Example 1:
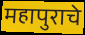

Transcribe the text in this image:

महापुराचे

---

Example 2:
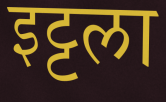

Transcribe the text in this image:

इट्टला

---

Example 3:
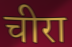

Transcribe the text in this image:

चीरा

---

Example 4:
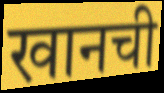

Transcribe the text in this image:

खानची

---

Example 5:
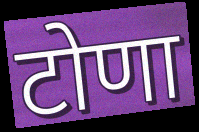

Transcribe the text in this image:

टोणा